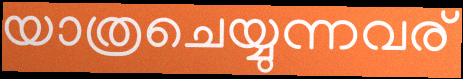
യാത്രചെയ്യുന്നവര്